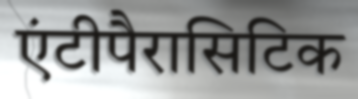
एंटीपैरासिटिक